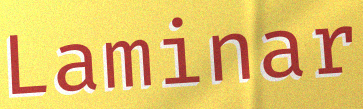
Laminar